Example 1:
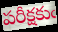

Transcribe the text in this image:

పరీక్షకుఁ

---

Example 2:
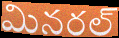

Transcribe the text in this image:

మినరల్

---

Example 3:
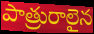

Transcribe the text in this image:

పాత్రురాలైన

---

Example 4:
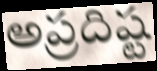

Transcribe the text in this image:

అప్రదిష్ట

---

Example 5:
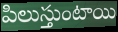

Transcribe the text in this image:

పిలుస్తుంటాయి